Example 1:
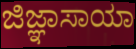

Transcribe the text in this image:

ಜಿಜ್ಞಾಸಾಯಾ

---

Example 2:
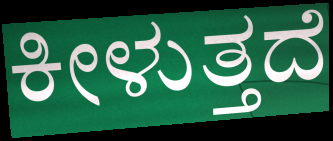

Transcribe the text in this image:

ಕೀಳುತ್ತದೆ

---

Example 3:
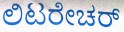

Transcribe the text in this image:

ಲಿಟರೇಚರ್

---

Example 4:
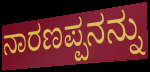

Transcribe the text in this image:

ನಾರಣಪ್ಪನನ್ನು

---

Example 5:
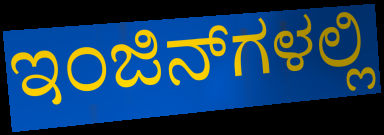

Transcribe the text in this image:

ಇಂಜಿನ್‌ಗಳಲ್ಲಿ